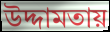
উদ্দামতায়